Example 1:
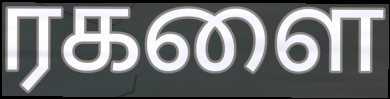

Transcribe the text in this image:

ரகளை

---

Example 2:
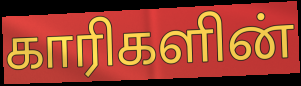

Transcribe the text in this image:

காரிகளின்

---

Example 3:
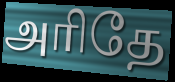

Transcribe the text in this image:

அரிதே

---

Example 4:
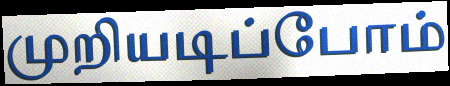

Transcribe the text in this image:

முறியடிப்போம்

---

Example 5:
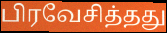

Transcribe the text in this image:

பிரவேசித்தது